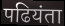
पढियंता